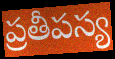
ప్రతీపస్య